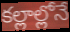
కల్లాల్లోనే